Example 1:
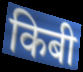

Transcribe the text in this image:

किबी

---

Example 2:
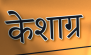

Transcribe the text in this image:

केशाग्र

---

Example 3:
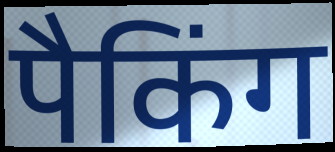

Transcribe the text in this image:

पैकिंग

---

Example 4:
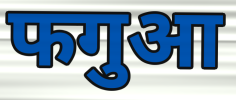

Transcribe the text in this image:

फगुआ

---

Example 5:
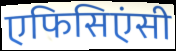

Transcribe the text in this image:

एफिसिएंसी